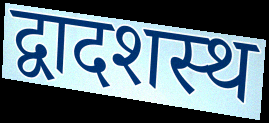
द्वादशस्थ